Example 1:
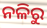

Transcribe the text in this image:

ନଳିରୁ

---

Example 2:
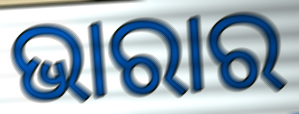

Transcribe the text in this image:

ଭାରାର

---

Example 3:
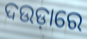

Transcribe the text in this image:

ଦଉଡ଼ାରେ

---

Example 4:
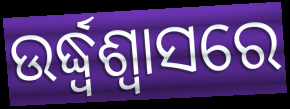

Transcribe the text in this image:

ଉର୍ଦ୍ଧ୍ଵଶ୍ୱାସରେ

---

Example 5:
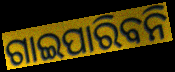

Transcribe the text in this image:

ଗାଇପାରିବନି